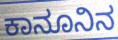
ಕಾನೂನಿನ